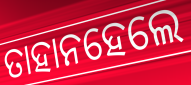
ତାହାନହେଲେ